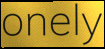
onely